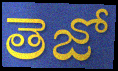
తెజో